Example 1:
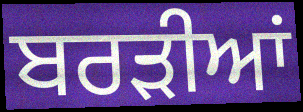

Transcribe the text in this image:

ਬਰੜੀਆਂ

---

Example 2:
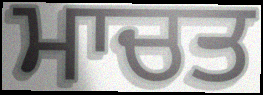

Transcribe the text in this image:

ਮਾਚਤ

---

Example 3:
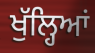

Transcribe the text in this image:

ਖੁੱਲ੍ਹਿਆਂ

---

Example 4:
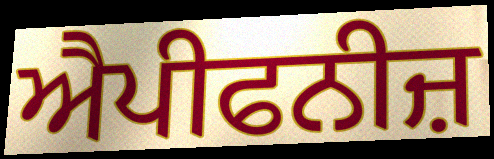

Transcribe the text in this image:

ਐਪੀਫਨੀਜ਼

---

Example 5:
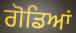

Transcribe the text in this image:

ਗੋਡਿਆਂ